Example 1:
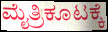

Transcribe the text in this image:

ಮೈತ್ರಿಕೂಟಕ್ಕೆ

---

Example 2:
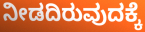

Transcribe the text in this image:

ನೀಡದಿರುವುದಕ್ಕೆ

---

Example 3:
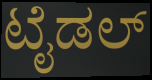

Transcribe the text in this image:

ಟೈಡಲ್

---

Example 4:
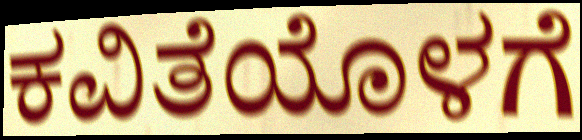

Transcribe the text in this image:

ಕವಿತೆಯೊಳಗೆ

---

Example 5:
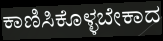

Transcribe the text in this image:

ಕಾಣಿಸಿಕೊಳ್ಳಬೇಕಾದ